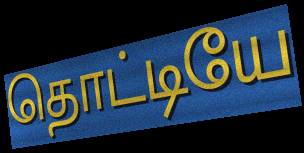
தொட்டியே